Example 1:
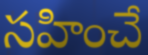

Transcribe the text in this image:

సహించే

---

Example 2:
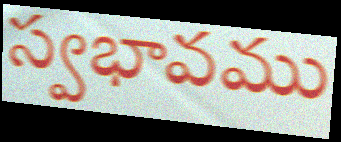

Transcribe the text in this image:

స్వభావము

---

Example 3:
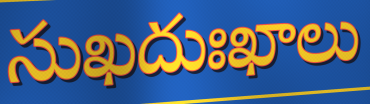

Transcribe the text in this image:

సుఖదుఃఖాలు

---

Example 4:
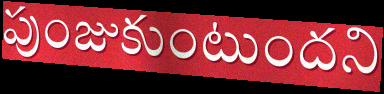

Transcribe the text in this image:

పుంజుకుంటుందని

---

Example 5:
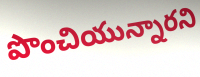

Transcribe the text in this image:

పొంచియున్నారని